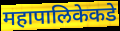
महापालिकेकडे